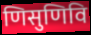
णिसुणिवि